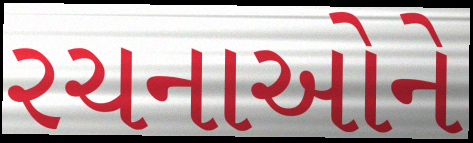
રચનાઓને